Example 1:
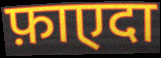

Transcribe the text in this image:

फ़ाएदा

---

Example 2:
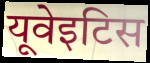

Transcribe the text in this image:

यूवेइटिस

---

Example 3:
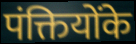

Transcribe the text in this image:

पंक्तियोंके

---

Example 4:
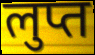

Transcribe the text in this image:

लुप्त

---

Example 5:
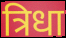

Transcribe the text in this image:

त्रिधा